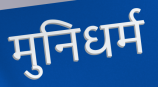
मुनिधर्म